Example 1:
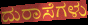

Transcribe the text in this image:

ದುರಾಸೆಗಳು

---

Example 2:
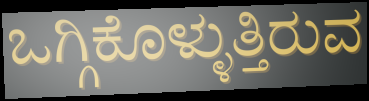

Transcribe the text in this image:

ಒಗ್ಗಿಕೊಳ್ಳುತ್ತಿರುವ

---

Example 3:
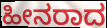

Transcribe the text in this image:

ಹೀನರಾದ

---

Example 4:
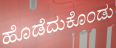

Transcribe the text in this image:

ಹೊಡೆದುಕೊಂಡು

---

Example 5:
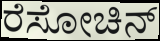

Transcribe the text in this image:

ರೆಸೋಚಿನ್